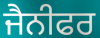
ਜੈਨੀਫਰ